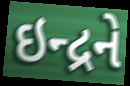
ઇન્દ્રને